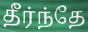
தீர்ந்தே